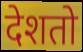
देशतो